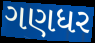
ગણધર